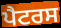
ਪੈਟਰਸ